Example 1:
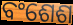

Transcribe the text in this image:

ବଂଶେଶ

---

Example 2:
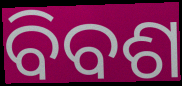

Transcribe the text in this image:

ବିବଶ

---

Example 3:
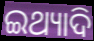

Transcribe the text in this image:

ଇଥ୍ୟାଦି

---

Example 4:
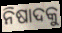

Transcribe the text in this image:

ନିଷାଦକୁ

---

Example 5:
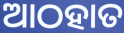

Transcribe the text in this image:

ଆଠହାତ